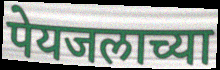
पेयजलाच्या